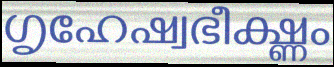
ഗൃഹേഷ്വഭീക്ഷ്ണം